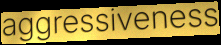
aggressiveness